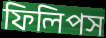
ফিলিপস